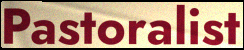
Pastoralist